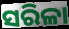
ସରିଳା